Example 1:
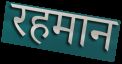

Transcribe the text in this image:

रहमान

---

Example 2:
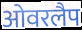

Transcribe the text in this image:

ओवरलैप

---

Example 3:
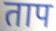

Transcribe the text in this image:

ताप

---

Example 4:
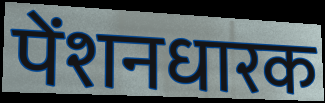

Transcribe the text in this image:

पेंशनधारक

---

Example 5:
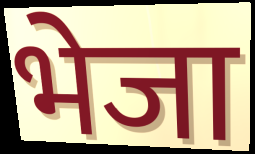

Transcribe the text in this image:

भेजा